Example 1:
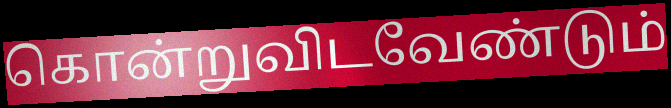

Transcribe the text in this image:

கொன்றுவிடவேண்டும்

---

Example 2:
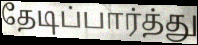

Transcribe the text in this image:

தேடிப்பார்த்து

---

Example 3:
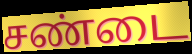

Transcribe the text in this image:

சண்டை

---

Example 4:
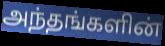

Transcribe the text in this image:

அந்தங்களின்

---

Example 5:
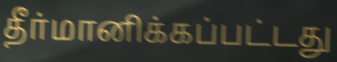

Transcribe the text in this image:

தீர்மானிக்கப்பட்டது